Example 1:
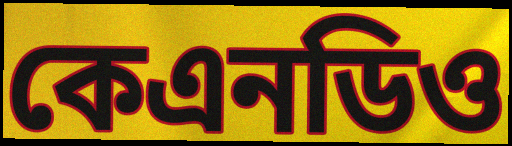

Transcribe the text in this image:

কেএনডিও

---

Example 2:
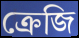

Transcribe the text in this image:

ক্রেজি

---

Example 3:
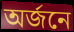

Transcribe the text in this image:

অর্জনে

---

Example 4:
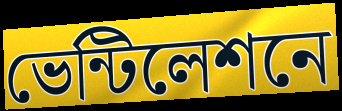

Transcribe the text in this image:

ভেন্টিলেশনে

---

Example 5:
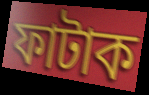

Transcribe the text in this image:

ফাটাক